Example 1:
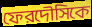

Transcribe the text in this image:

ফেরদৌসিকে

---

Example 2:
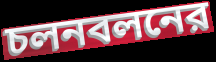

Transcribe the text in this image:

চলনবলনের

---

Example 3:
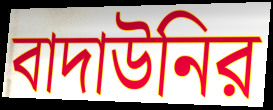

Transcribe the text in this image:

বাদাউনির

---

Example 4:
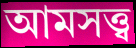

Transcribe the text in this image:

আমসত্ত্ব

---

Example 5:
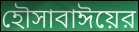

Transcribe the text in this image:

হৌসাবাঈয়ের